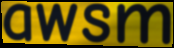
awsm